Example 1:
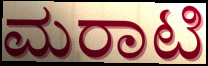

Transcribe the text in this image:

ಮರಾಟಿ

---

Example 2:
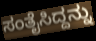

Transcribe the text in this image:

ಸಂತೈಸಿದ್ದನ್ನು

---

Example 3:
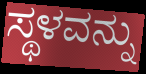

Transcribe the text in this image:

ಸ್ಥಳವನ್ನು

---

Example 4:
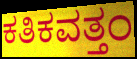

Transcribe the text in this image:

ಕತಿಕವತ್ತಂ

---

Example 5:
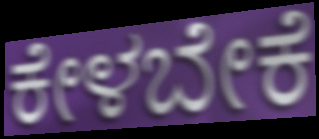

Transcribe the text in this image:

ಕೇಳಬೇಕೆ